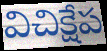
విచిక్షేప